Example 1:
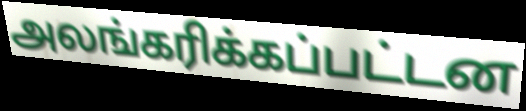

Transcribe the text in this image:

அலங்கரிக்கப்பட்டன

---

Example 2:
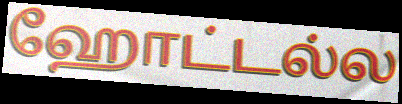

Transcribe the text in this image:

ஹோட்டல்ல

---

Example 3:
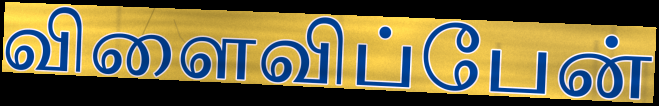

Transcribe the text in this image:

விளைவிப்பேன்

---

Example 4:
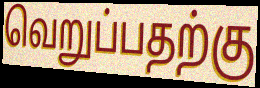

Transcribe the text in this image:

வெறுப்பதற்கு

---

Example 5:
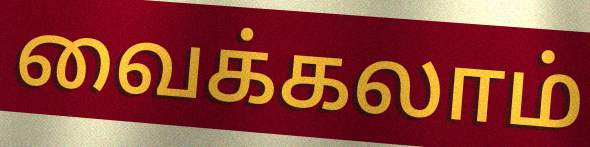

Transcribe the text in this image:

வைக்கலாம்